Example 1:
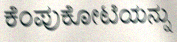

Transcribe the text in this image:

ಕೆಂಪುಕೋಟೆಯನ್ನು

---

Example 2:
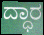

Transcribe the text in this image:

ದ್ಧಾರ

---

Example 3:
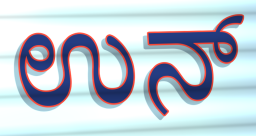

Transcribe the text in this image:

ಉನ್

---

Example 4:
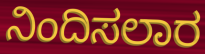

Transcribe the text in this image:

ನಿಂದಿಸಲಾರ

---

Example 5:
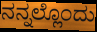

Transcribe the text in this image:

ನನ್ನಲ್ಲೊಂದು